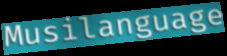
Musilanguage